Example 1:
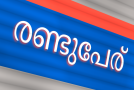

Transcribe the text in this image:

രണ്ടുപേര്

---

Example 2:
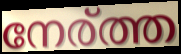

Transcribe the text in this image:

നേര്ത്ത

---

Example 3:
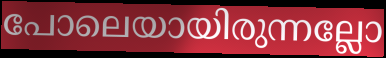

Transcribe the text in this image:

പോലെയായിരുന്നല്ലോ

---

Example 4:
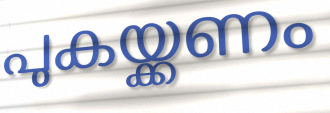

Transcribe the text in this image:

പുകയ്ക്കണം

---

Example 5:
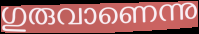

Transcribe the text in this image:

ഗുരുവാണെന്നു